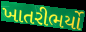
ખાતરીભર્યો